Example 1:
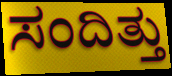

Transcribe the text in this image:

ಸಂದಿತ್ತು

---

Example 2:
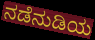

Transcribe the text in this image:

ನಡೆನುಡಿಯ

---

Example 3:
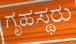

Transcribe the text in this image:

ಗೃಹಸ್ಥರು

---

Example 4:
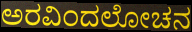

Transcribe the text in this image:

ಅರವಿಂದಲೋಚನ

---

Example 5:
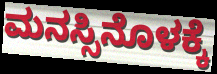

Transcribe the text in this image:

ಮನಸ್ಸಿನೊಳಕ್ಕೆ